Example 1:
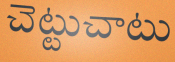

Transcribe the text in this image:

చెట్టుచాటు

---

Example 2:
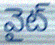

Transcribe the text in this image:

వైట్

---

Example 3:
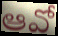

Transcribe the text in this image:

ఆవో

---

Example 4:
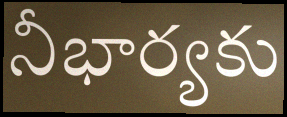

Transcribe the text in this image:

నీభార్యకు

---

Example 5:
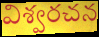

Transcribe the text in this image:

విశ్వరచన